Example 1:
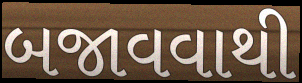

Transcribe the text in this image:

બજાવવાથી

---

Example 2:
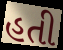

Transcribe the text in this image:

હતી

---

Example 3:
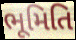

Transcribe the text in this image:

ભૂમિતિ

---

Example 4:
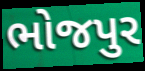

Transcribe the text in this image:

ભોજપુર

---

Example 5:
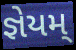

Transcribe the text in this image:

જ્ઞેયમ્